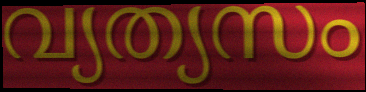
വ്യത്യസം